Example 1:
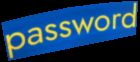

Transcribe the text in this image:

password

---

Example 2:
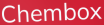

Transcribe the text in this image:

Chembox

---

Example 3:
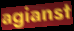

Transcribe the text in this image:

agianst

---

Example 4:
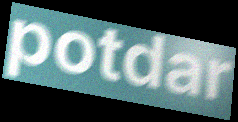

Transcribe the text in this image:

potdar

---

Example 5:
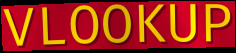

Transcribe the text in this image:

VLOOKUP